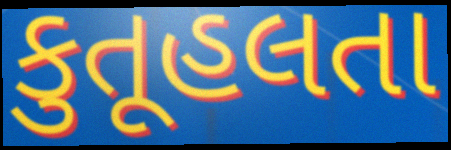
કુતૂહલતા